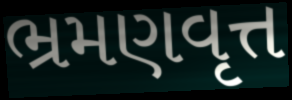
ભ્રમણવૃત્ત